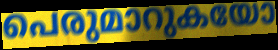
പെരുമാറുകയോ